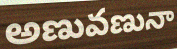
అణువణునా